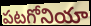
పటగోనియా